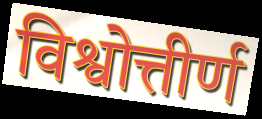
विश्वोत्तीर्ण